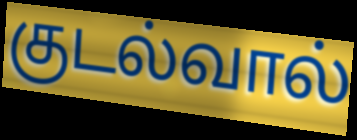
குடல்வால்